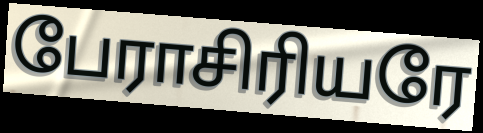
பேராசிரியரே